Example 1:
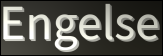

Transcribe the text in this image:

Engelse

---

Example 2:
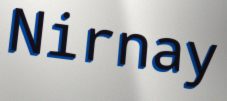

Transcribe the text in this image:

Nirnay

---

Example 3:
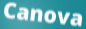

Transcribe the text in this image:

Canova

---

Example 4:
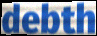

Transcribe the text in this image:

debth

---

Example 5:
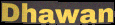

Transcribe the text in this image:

Dhawan